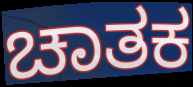
ಚಾತಕ